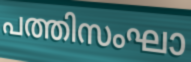
പത്തിസംഘാ